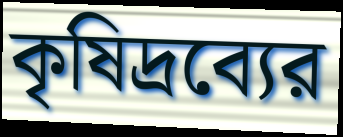
কৃষিদ্রব্যের